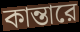
কান্তারে